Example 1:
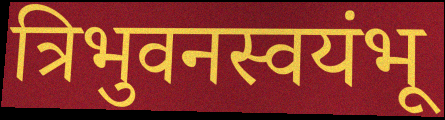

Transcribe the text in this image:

त्रिभुवनस्वयंभू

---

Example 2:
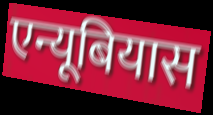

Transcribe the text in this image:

एन्यूबियास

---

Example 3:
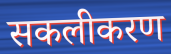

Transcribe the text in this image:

सकलीकरण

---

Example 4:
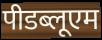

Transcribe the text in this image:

पीडब्लूएम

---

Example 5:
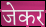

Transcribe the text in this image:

जेकर